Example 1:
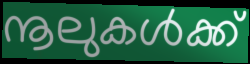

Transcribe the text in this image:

നൂലുകൾക്ക്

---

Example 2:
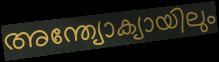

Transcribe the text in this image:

അന്ത്യോക്യായിലും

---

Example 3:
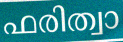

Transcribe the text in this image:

ഫരിത്വാ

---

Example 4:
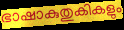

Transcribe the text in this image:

ഭാഷാകുതുകികളും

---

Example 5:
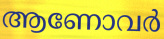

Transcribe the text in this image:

ആണോവർ